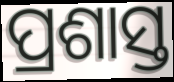
ପ୍ରଶାସ୍ତ